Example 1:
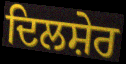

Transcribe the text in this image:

ਦਿਲਸ਼ੇਰ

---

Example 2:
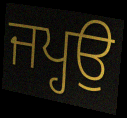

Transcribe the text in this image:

ਜਪ੍ਹਉ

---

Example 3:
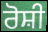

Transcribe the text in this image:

ਰੋਸ਼ੀ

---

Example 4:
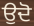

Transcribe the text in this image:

ਉਦੋ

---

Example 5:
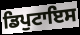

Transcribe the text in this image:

ਡਿਪੁਟਾਇਸ